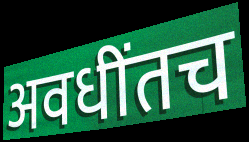
अवधींतच